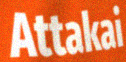
Attakai